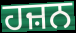
ਹਜ਼ਨ